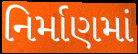
નિર્માણમાં